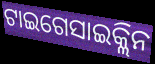
ଟାଇଗେସାଇକ୍ଲିନ